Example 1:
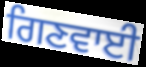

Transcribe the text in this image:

ਗਿਣਵਾਈ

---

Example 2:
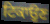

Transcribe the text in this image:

ਟਿਕਾਉਣ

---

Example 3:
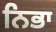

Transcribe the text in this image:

ਨਿਭਾ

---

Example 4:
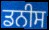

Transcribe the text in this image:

ਡਨੀਸ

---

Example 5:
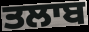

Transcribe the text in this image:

ਤਲਾਬ